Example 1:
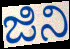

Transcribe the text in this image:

ಜಿನಿ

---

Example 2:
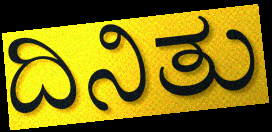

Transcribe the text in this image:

ದಿನಿತು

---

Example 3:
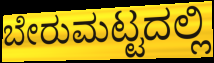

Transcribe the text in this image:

ಬೇರುಮಟ್ಟದಲ್ಲಿ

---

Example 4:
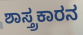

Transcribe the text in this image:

ಶಾಸ್ತ್ರಕಾರನ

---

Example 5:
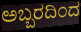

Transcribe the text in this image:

ಅಬ್ಬರದಿಂದ